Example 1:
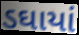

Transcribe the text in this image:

ડઘાયાં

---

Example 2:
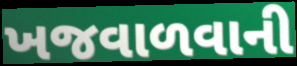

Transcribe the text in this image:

ખજવાળવાની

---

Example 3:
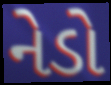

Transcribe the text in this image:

નેડો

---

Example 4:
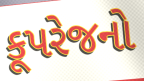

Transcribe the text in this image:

કૂપરેજનો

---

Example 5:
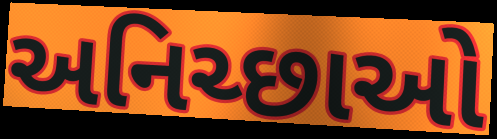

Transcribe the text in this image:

અનિચ્છાઓ